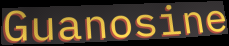
Guanosine